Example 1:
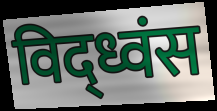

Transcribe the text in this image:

विद्ध्वंस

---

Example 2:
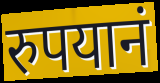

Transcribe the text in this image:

रुपयानं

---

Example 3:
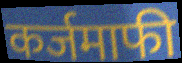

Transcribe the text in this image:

कर्जमाफी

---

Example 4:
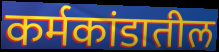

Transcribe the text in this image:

कर्मकांडातील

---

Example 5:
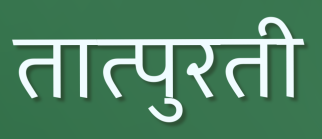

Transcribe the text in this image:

तात्पुरती